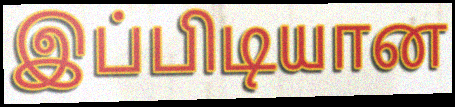
இப்பிடியான